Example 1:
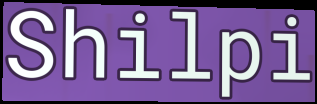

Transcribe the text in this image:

Shilpi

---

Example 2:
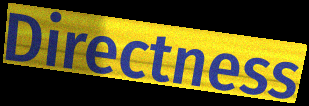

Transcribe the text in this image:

Directness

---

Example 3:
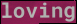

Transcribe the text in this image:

loving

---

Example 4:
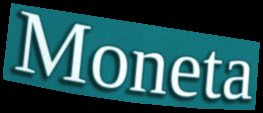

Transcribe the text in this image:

Moneta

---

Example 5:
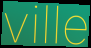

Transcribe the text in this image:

ville